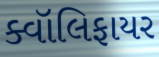
ક્વૉલિફાયર